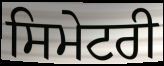
ਸਿਮੇਟਰੀ